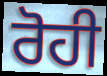
ਰੋਹੀ